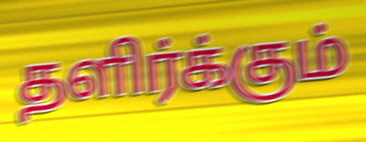
தளிர்க்கும்